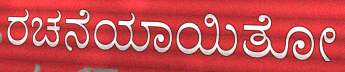
ರಚನೆಯಾಯಿತೋ